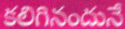
కలిగినందునే